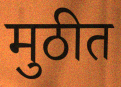
मुठीत